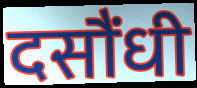
दसौंधी